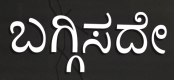
ಬಗ್ಗಿಸದೇ